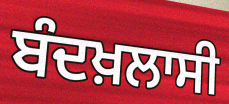
ਬੰਦਖ਼ਲਾਸੀ